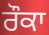
ਰੌਕਾ